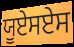
ਯੂਏਸਏਸ